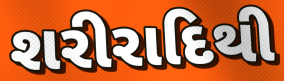
શરીરાદિથી